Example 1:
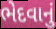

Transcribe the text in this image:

ભેદવાનું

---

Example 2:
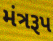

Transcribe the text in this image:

મંત્રરૂપ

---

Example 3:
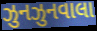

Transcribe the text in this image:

ઝુનઝુનવાલા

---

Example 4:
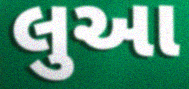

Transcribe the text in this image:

લુઆ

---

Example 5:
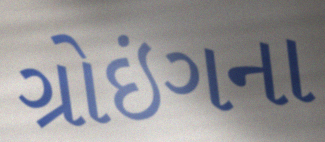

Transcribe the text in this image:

ગ્રોઇંગના